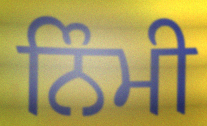
ਨਿੰਮੀ